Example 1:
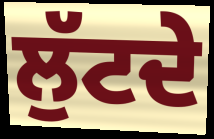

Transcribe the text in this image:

ਲੁੱਟਦੇ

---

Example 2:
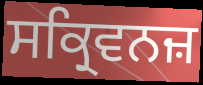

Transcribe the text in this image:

ਸਕ੍ਰਿਵਨਜ਼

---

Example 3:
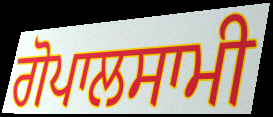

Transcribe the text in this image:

ਗੋਪਾਲਸਾਮੀ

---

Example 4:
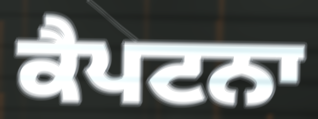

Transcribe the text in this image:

ਕੈਪਟਨਾ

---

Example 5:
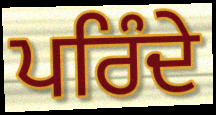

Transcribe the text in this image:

ਪਰਿੰਦੇ